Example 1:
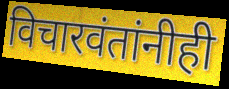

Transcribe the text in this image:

विचारवंतांनीही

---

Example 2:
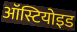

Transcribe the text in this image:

ऑस्टियोइड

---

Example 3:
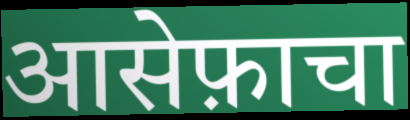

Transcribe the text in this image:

आसेफ़ाचा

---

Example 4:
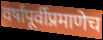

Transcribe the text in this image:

वर्षांपूर्वीप्रमाणेच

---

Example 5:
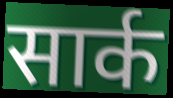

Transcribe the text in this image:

सार्क